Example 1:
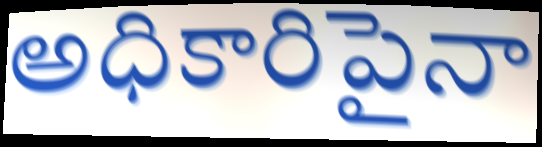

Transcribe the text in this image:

అధికారిపైనా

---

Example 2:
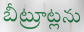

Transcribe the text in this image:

బీట్రూట్లను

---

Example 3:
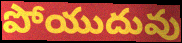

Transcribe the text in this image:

పోయుదువు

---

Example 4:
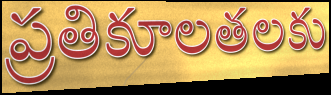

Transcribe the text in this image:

ప్రతికూలతలకు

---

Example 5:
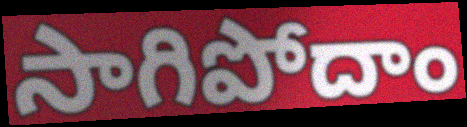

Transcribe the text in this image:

సాగిపోదాం